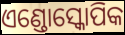
ଏଣ୍ଡୋସ୍କୋପିକ